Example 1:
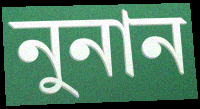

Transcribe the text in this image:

নুনান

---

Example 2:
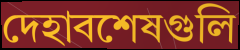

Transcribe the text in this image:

দেহাবশেষগুলি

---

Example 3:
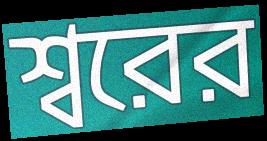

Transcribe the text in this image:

শ্বরের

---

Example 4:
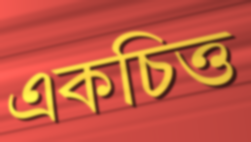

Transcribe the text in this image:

একচিত্ত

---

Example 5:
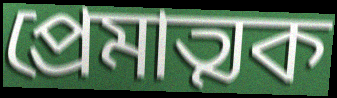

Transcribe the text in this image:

প্রেমাত্মক